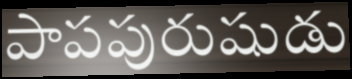
పాపపురుషుడు